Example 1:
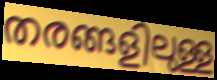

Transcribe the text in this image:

തരങ്ങളിലുള്ള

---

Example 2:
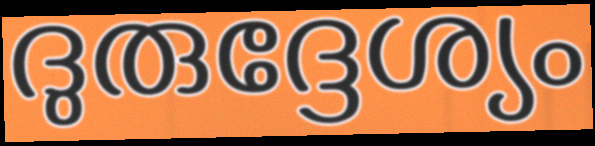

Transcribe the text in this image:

ദുരുദ്ദേശ്യം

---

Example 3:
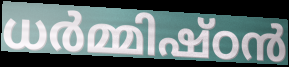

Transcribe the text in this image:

ധർമ്മിഷ്ഠൻ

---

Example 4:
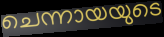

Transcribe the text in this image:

ചെന്നായയുടെ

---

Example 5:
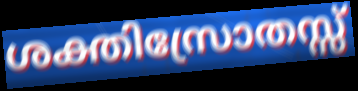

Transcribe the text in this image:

ശക്തിസ്രോതസ്സ്